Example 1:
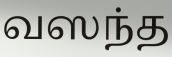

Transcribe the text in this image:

வஸந்த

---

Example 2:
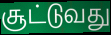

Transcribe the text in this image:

சூட்டுவது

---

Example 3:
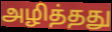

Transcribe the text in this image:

அழித்தது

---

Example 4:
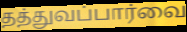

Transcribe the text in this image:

தத்துவப்பார்வை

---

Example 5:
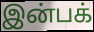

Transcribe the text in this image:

இன்பக்